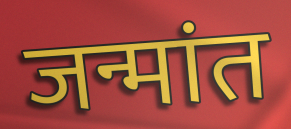
जन्मांत